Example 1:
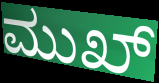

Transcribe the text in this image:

ಮುಖ್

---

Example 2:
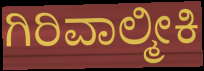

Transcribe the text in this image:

ಗಿರಿವಾಲ್ಮೀಕಿ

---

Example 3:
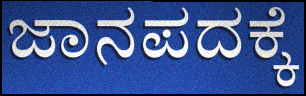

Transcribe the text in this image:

ಜಾನಪದಕ್ಕೆ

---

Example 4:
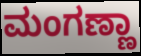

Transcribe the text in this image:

ಮಂಗಣ್ಣಾ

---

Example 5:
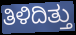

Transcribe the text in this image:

ತಿಳಿದಿತ್ತು